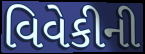
વિવેકીની